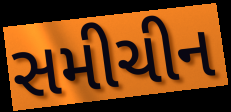
સમીચીન